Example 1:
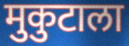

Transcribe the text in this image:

मुकुटाला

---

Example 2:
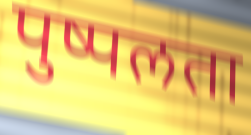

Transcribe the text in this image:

पुष्पलता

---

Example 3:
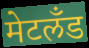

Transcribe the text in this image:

मेटलँड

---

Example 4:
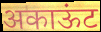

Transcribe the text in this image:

अकाऊंट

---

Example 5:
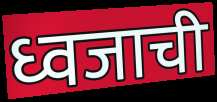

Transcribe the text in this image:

ध्वजाची